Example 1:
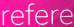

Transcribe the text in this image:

refere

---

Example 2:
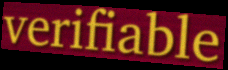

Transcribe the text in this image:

verifiable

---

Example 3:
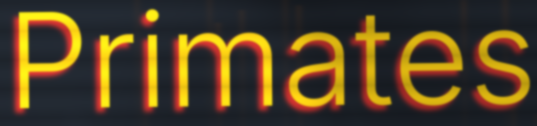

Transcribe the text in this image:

Primates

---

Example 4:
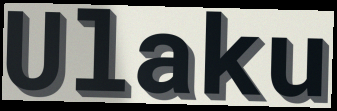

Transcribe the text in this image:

Ulaku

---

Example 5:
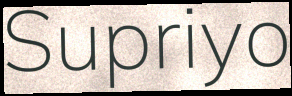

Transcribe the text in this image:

Supriyo